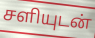
சளியுடன்